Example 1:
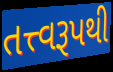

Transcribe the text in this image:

તત્ત્વરૂપથી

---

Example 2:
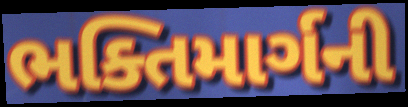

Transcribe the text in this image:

ભક્તિમાર્ગની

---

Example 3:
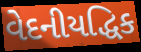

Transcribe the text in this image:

વેદનીયદ્ધિક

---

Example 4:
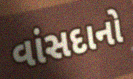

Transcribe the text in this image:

વાંસદાનો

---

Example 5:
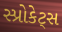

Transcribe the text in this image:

સ્પ્રોકેટ્સ